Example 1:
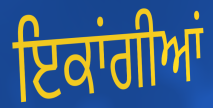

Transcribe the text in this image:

ਇਕਾਂਗੀਆਂ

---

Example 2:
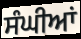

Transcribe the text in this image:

ਸੰਘੀਆਂ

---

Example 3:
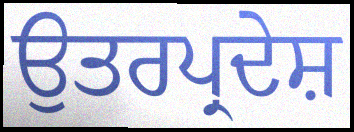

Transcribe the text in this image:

ਉਤਰਪ੍ਰਦੇਸ਼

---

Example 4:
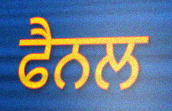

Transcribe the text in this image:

ਫੈਨਲ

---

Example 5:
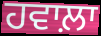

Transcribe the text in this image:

ਹਵਾਲ਼ਾ